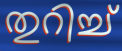
തുറിച്ച്